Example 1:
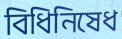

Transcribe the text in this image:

বিধিনিষেধ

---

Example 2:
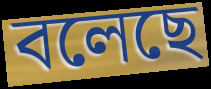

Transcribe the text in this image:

বলেছে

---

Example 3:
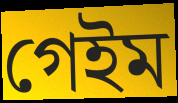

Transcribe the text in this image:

গেইম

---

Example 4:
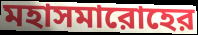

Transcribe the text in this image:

মহাসমারোহের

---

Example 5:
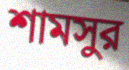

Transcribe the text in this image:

শামসুর